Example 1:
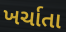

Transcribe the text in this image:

ખર્ચાતા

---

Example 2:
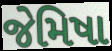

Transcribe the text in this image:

જેમિષા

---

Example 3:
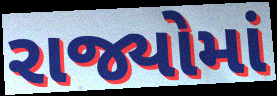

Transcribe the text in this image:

રાજ્યોમાં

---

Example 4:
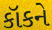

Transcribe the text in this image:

કૉકને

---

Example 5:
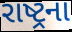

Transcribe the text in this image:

રાષ્ટ્રના